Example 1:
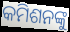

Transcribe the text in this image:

କମିଶନଙ୍କୁ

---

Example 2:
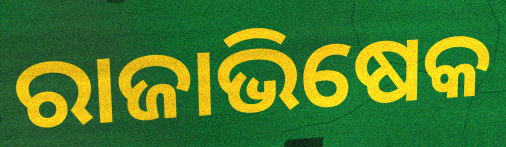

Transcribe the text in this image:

ରାଜାଭିଷେକ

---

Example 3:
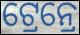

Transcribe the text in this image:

ଟ୍ରେନ୍ରେ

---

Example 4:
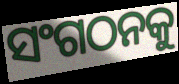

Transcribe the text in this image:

ସଂଗଠନକୁ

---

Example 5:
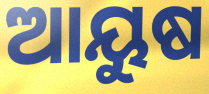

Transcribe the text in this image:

ଆୟୁଷ